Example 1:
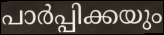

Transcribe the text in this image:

പാർപ്പിക്കയും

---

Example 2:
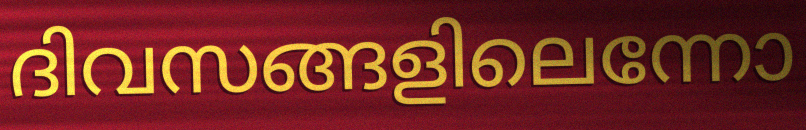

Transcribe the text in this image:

ദിവസങ്ങളിലെന്നോ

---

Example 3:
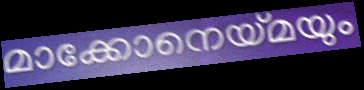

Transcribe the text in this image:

മാക്കോനെയ്മയും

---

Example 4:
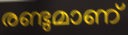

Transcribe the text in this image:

രണ്ടുമാണ്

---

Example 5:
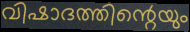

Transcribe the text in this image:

വിഷാദത്തിന്റെയും